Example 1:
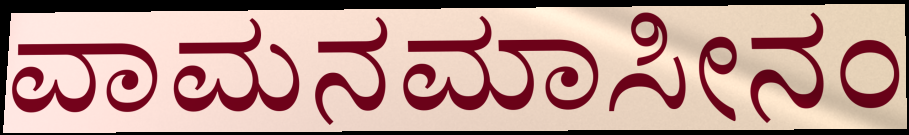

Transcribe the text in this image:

ವಾಮನಮಾಸೀನಂ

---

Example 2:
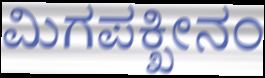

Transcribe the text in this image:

ಮಿಗಪಕ್ಖೀನಂ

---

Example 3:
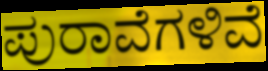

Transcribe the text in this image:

ಪುರಾವೆಗಳಿವೆ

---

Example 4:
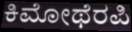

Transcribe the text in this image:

ಕಿಮೋಥೆರಪಿ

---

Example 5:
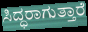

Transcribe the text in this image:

ಸಿದ್ಧರಾಗುತ್ತಾರೆ